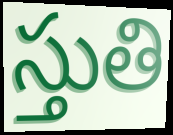
స్తుతి